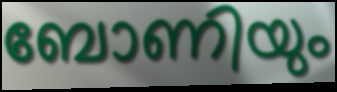
ബോണിയും